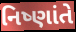
નિષ્ણાંતે